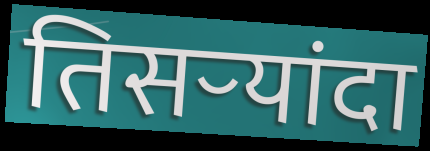
तिसऱ्यांदा